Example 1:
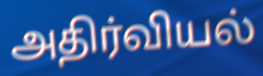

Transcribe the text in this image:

அதிர்வியல்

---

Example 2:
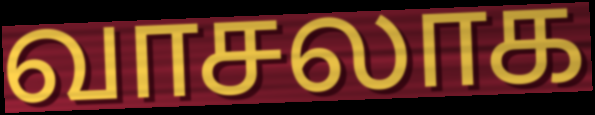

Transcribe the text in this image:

வாசலாக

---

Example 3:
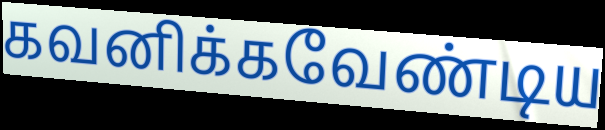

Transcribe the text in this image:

கவனிக்கவேண்டிய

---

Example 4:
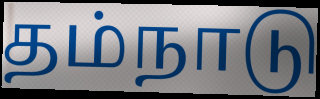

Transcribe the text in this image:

தம்நாடு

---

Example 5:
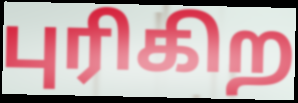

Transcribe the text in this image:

புரிகிற